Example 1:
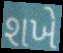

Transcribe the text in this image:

શખે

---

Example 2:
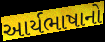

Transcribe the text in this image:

આર્યભાષાનો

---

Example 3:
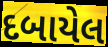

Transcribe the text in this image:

દબાયેલ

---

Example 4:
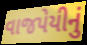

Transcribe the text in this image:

વાજપેયીનું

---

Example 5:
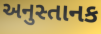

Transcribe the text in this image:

અનુસ્તાનક